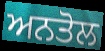
ਅਨਤੋਲ